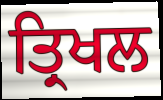
ਤ੍ਰਿਖਲ